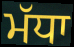
ਮੱਧਾ